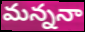
మన్ననా